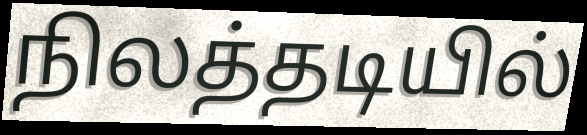
நிலத்தடியில்